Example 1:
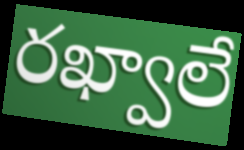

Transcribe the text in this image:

రఖ్వాలే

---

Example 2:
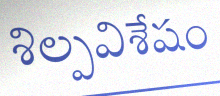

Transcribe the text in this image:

శిల్పవిశేషం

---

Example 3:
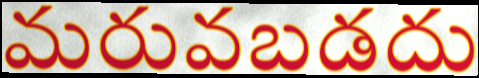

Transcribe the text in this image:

మరువబడదు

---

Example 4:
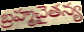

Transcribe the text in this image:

బ్రహ్మచైతన్య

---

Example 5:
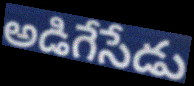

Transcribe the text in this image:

అడిగేసేడు